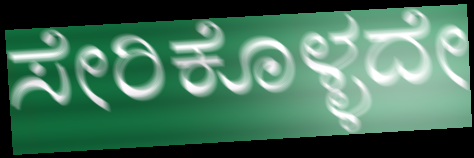
ಸೇರಿಕೊಳ್ಳದೇ